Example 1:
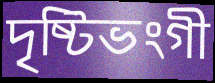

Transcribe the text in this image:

দৃষ্টিভংগী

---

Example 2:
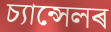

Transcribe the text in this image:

চ্যান্সেলৰ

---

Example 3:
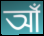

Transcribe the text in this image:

আঁ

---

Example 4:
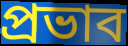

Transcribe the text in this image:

প্ৰভাব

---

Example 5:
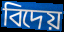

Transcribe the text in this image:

বিদেয়